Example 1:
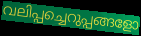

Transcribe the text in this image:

വലിപ്പച്ചെറുപ്പങ്ങളോ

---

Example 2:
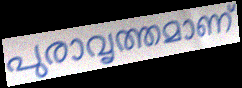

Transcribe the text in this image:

പുരാവൃത്തമാണ്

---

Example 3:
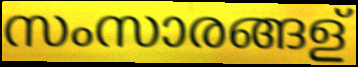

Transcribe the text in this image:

സംസാരങ്ങള്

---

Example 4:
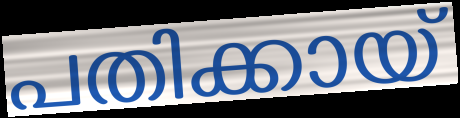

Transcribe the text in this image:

പതിക്കായ്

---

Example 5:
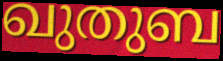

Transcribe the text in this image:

ഖുതുബ